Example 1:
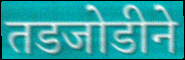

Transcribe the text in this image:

तडजोडीने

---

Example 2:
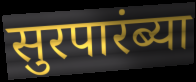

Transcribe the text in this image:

सुरपारंब्या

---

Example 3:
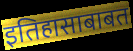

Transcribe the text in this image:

इतिहासाबाबत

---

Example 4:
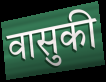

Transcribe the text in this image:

वासुकी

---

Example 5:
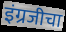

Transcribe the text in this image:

इंग्रजीचा